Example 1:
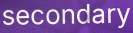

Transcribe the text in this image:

secondary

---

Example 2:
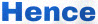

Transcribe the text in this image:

Hence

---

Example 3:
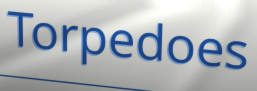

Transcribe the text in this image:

Torpedoes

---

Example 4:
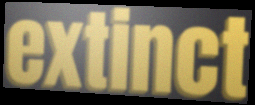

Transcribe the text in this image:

extinct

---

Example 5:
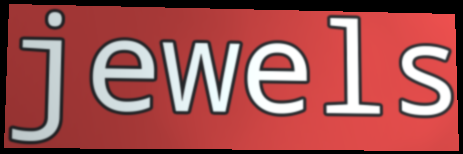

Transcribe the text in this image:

jewels